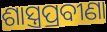
ଶାସ୍ତ୍ରପ୍ରବୀଣା